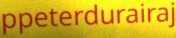
ppeterdurairaj